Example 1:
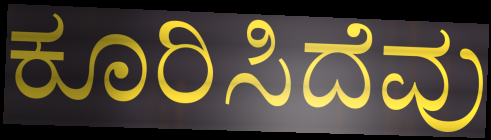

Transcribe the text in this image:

ಕೂರಿಸಿದೆವು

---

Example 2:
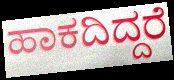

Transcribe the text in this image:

ಹಾಕದಿದ್ದರೆ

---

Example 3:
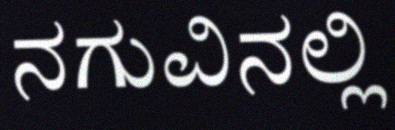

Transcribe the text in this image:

ನಗುವಿನಲ್ಲಿ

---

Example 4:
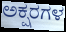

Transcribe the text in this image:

ಅಕ್ಷರಗಳ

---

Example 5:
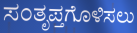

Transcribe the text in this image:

ಸಂತೃಪ್ತಗೊಳಿಸಲು